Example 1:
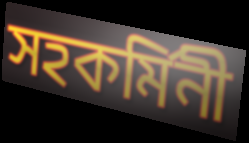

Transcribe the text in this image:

সহকর্মিনী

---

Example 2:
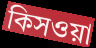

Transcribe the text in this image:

কিসওয়া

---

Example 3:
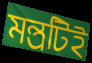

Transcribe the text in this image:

মন্ত্রটিই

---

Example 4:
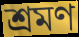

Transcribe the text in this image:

শ্রমণ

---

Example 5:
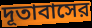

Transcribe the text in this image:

দূতাবাসের